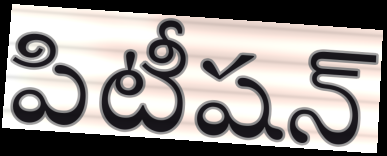
పిటీషన్